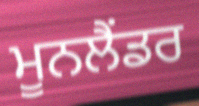
ਮੂਨਲੈਂਡਰ